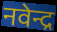
नवेन्द्र